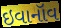
ઇવાનૉવ